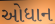
ઓધાન